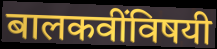
बालकवींविषयी